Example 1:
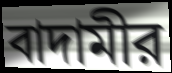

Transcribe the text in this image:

বাদামীর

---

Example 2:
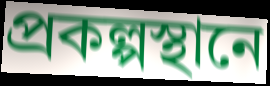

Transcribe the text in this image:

প্রকল্পস্থানে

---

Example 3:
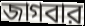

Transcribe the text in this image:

জাগবার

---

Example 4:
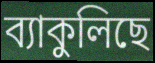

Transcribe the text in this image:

ব্যাকুলিছে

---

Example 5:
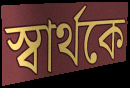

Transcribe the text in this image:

স্বার্থকে